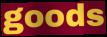
goods